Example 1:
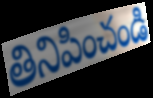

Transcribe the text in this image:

తినిపించండి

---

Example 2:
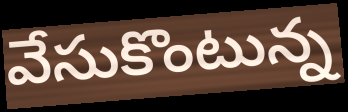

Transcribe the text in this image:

వేసుకొంటున్న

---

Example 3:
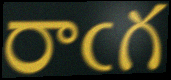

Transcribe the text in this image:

రాఁగ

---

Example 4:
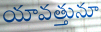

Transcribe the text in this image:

యావత్తునూ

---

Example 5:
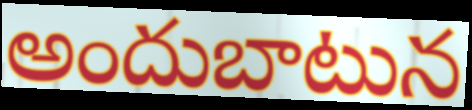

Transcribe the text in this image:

అందుబాటున